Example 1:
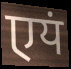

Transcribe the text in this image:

एयं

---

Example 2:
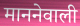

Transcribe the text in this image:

माननेवाली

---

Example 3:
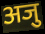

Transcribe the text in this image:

अजु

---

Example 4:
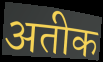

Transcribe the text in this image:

अतीक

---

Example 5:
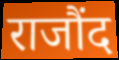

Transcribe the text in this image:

राजौंद